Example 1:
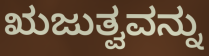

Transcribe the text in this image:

ಋಜುತ್ವವನ್ನು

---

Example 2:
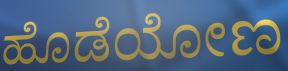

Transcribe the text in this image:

ಹೊಡೆಯೋಣ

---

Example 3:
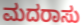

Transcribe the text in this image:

ಮದರಾಸು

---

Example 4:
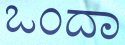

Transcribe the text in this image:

ಒಂದಾ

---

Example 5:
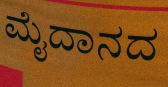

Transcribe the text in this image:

ಮೈದಾನದ